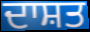
ਦਾਸ਼ਤ